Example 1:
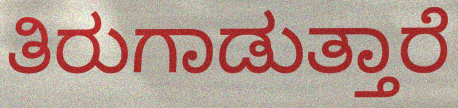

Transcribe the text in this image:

ತಿರುಗಾಡುತ್ತಾರೆ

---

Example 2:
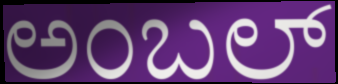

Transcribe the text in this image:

ಅಂಬಲ್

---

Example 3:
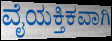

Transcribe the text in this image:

ವೈಯಕ್ತಿಕವಾಗಿ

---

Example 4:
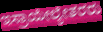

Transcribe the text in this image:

ಇಸ್ರಾಯೇಲ್ಯೇತರರು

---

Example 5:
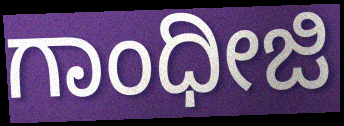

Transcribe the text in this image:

ಗಾಂಧೀಜಿ